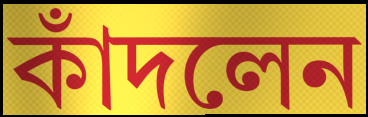
কাঁদলেন